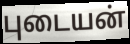
புடையன்